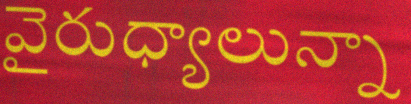
వైరుధ్యాలున్నా